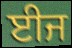
ਈਜ